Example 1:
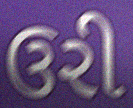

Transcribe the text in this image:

ઉરી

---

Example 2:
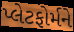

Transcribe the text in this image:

પ્લેટફોર્મને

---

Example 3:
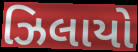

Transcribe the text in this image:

ઝિલાયો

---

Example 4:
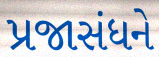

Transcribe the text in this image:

પ્રજાસંધને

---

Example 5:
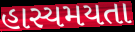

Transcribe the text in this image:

હાસ્યમયતા